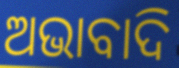
ଅଭାବାଦି